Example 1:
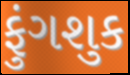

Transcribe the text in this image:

ફુંગશુક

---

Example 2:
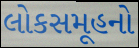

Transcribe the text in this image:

લોકસમૂહનો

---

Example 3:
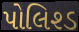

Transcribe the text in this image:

પોલિશ્ડ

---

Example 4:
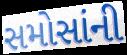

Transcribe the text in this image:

સમોસાંની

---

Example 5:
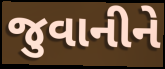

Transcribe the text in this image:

જુવાનીને